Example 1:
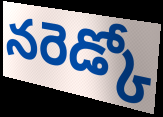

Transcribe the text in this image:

నరెడ్కో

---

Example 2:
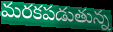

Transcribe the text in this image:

మరకపడుతున్న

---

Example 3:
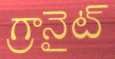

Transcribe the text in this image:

గ్రానైట్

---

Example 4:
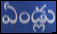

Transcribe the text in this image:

ఏండ్లు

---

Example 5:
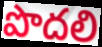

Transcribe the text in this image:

పొదలి